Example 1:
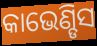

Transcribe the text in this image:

କାଭେଣ୍ଡିସ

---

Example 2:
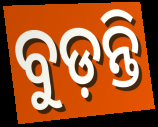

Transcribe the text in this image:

ବୁଡ଼ନ୍ତି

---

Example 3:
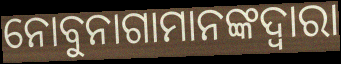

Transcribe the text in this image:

ନୋବୁନାଗାମାନଙ୍କଦ୍ୱାରା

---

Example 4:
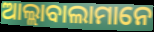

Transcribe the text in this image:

ଆଲ୍ଲାବାଲାମାନେ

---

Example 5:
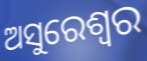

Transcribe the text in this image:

ଅସୁରେଶ୍ୱର